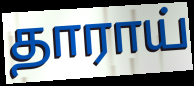
தாராய்